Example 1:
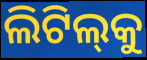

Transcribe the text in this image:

ଲିଟିଲ୍‌କୁ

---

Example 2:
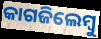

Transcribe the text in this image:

କାଗଜିଲେମ୍ବୁ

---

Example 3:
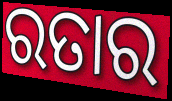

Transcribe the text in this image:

ରତାର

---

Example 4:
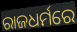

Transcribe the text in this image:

ରାଜଧର୍ମରେ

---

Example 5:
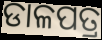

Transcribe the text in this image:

ଡାଳପତ୍ର